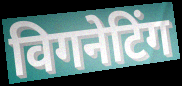
विगनेटिंग